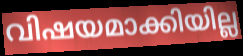
വിഷയമാക്കിയില്ല